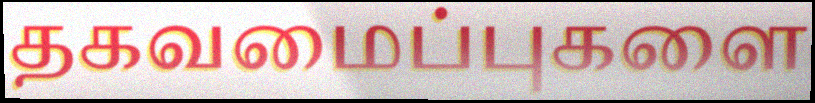
தகவமைப்புகளை